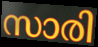
സാരി